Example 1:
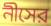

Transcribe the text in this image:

নীসের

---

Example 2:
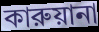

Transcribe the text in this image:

কারুয়ানা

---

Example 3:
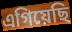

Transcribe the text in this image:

এগিয়েছি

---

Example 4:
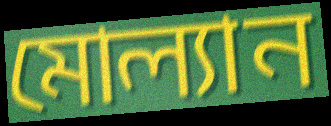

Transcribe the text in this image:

মোল্যান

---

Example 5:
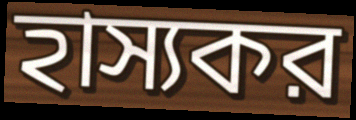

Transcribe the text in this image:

হাস্যকর